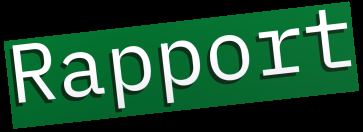
Rapport